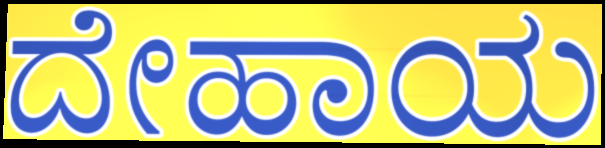
ದೇಹಾಯ